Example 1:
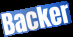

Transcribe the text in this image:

Backer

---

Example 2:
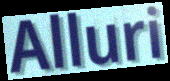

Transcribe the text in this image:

Alluri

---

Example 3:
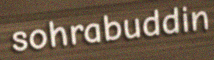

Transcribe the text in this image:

sohrabuddin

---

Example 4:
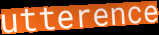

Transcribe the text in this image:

utterence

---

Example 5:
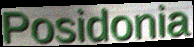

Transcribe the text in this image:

Posidonia